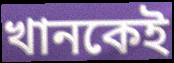
খানকেই